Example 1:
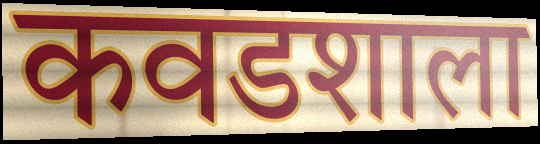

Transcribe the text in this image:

कवडशाला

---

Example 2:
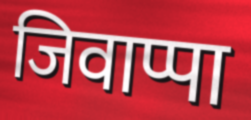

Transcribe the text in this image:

जिवाप्पा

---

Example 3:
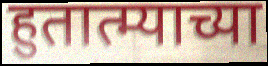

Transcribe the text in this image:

हुतात्म्याच्या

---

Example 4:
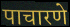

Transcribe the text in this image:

पाचारणे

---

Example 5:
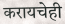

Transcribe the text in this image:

करायचेही